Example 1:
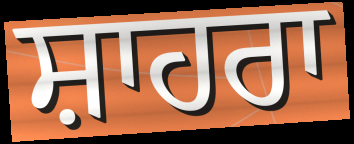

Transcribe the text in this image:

ਸ਼ਾਹਰਾ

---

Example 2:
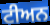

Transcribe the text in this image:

ਟੀਅਨ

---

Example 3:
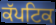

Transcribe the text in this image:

ਕੱਪਟਿਕ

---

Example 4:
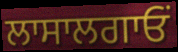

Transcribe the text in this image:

ਲਾਸਾਲਗਾਓਂ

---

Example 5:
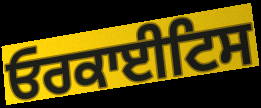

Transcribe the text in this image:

ਓਰਕਾਈਟਿਸ